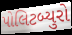
પોલિટબ્યુરો